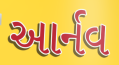
આર્નવ